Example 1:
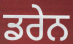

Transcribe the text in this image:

ਡਰੇਨ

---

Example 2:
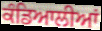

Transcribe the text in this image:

ਕੰਡਿਆਲੀਆਂ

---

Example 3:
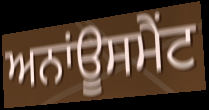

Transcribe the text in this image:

ਅਨਾਂਊਸਮੈਂਟ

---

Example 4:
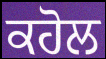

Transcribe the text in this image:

ਕਹੋਲ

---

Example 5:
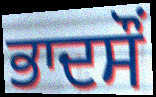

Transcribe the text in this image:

ਭਾਦਸੌਂ